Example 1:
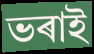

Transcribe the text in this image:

ভৰাই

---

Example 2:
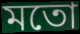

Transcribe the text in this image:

মতো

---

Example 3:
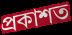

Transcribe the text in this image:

প্ৰকাশত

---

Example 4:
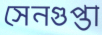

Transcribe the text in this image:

সেনগুপ্তা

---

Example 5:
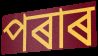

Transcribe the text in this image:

পৰাৰ